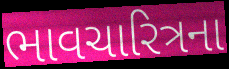
ભાવચારિત્રના